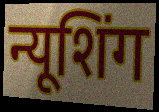
न्यूशिंग